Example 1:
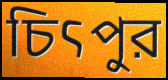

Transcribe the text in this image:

চিৎপুর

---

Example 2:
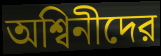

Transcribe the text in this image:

অশ্বিনীদের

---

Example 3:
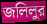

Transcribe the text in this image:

জলিলুর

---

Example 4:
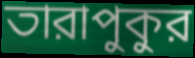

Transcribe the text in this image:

তারাপুকুর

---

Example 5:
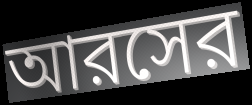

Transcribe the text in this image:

আরসের